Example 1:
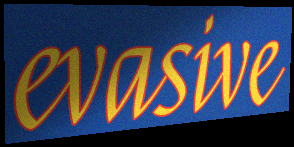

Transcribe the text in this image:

evasive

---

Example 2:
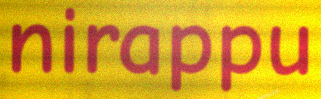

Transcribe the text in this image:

nirappu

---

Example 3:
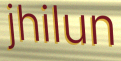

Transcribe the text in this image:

jhilun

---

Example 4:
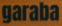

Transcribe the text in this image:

garaba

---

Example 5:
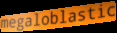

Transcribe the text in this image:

megaloblastic